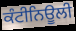
ਕੰਟੀਨਿਊਲੀ